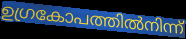
ഉഗ്രകോപത്തിൽനിന്ന്